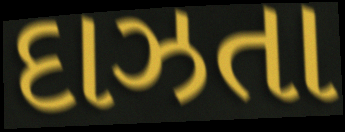
દાઝતા